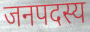
जनपदस्य